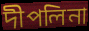
দীপলিনা